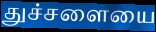
துச்சளையை